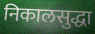
निकालसुद्धा